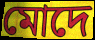
মোদে